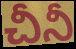
చీనీ